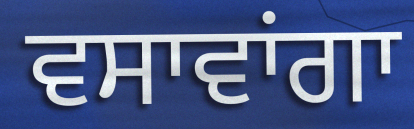
ਵਸਾਵਾਂਗਾ